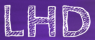
LHD